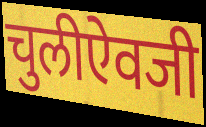
चुलीऐवजी